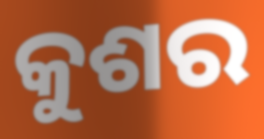
କୁଶର